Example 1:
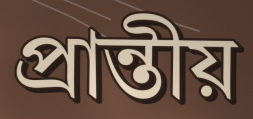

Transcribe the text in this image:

প্ৰান্তীয়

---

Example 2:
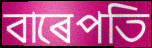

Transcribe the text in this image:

বাৰেপতি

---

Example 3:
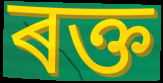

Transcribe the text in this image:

ৰক্ত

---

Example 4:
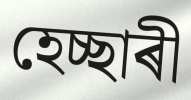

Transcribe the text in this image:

হেচ্ছাৰী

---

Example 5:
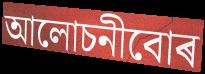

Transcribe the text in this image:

আলোচনীবোৰ